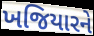
ખજિયારને